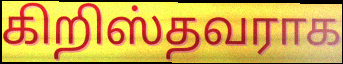
கிறிஸ்தவராக